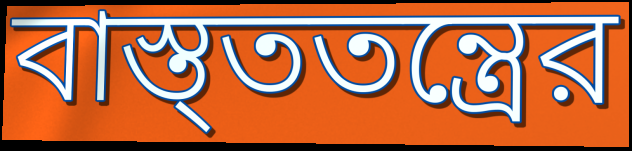
বাস্ত্ততন্ত্রের